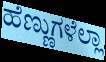
ಹೆಣ್ಣುಗಳೆಲ್ಲಾ